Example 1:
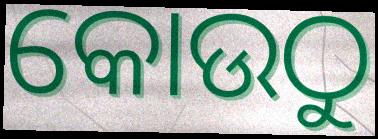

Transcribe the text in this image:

କୋଉଠୁ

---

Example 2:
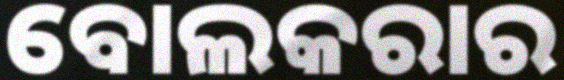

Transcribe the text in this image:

ବୋଲକରାର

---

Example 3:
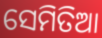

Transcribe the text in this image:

ସେମିତିଆ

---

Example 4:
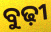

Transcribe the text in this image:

ବୁଢ଼ୀ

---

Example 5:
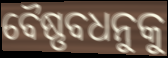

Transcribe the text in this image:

ବୈଷ୍ଣବଧନୁକୁ